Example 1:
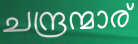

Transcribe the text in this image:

ചന്ദ്രന്മാര്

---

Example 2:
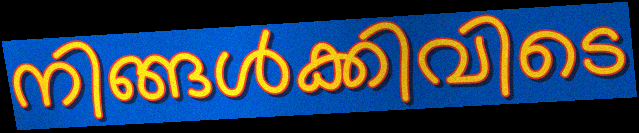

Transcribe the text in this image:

നിങ്ങൾക്കിവിടെ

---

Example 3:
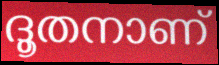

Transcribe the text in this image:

ദൂതനാണ്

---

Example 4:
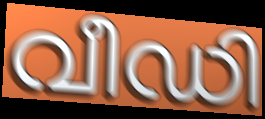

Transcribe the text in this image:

വീഡി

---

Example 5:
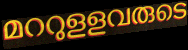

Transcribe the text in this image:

മററുളളവരുടെ